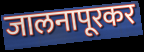
जालनापूरकर